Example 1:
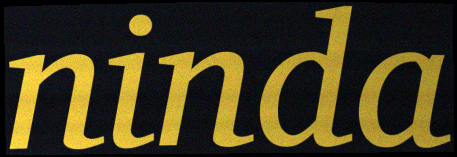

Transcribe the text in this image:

ninda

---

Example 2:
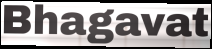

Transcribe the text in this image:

Bhagavat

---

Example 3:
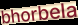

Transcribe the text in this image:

bhorbela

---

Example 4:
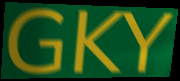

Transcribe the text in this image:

GKY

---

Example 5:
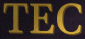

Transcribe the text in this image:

TEC